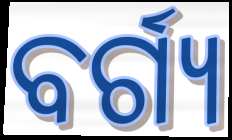
ବର୍ଗ୍ୟ